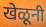
खेळूनी